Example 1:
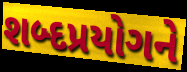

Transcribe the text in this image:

શબ્દપ્રયોગને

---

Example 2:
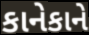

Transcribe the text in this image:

કાનેકાને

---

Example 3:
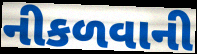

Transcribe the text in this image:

નીકળવાની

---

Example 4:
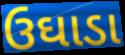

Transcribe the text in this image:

ઉઘાડા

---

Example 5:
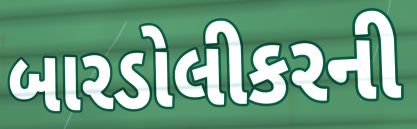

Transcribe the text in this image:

બારડોલીકરની